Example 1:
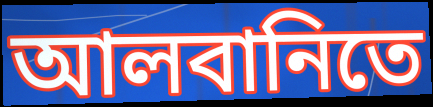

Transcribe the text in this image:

আলবানিতে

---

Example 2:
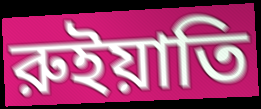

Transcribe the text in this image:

রুইয়াতি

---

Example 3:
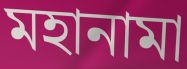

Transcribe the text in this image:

মহানামা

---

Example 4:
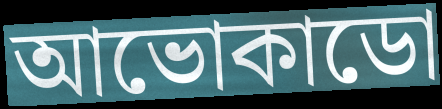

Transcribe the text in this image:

আভোকাডো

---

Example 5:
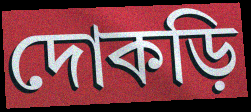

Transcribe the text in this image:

দোকড়ি